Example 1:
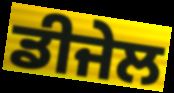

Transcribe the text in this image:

ਡੀਜੇਲ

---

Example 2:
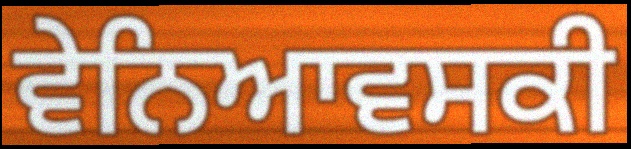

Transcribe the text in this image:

ਵੇਨਿਆਵਸਕੀ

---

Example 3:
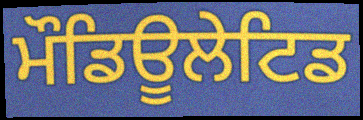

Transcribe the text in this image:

ਮੌਡਿਊਲੇਟਿਡ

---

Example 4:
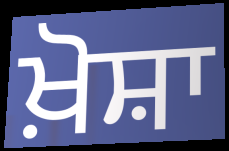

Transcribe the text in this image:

ਖ਼ੋਸ਼ਾ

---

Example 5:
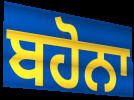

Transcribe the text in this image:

ਬਹੋਨਾ